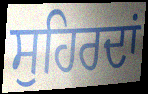
ਸੁਹਿਰਦਾਂ